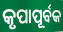
କୃପାପୂର୍ବକ